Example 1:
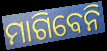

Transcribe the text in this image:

ମାଗିବେନି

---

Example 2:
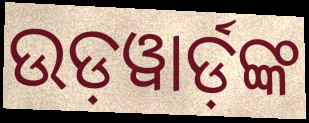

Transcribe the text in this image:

ଉଡ଼ୱାର୍ଡ଼ଙ୍କ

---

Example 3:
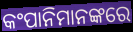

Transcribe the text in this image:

କଂପାନିମାନଙ୍କରେ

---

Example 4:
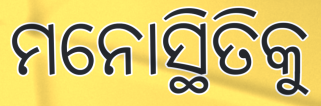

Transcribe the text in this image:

ମନୋସ୍ଥିତିକୁ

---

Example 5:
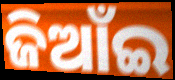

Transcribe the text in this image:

ଜିଆଁଇ